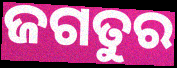
ଜଗତୁର